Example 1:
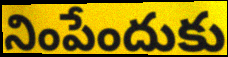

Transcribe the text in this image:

నింపేందుకు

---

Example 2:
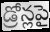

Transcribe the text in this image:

డ్రోన్లపై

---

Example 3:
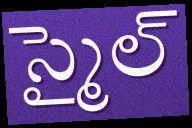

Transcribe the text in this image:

స్మైల్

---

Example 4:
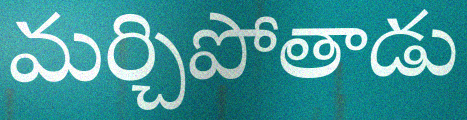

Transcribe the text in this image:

మర్చిపోతాడు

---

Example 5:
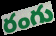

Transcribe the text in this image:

రంగు